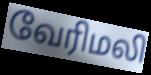
வேரிமலி